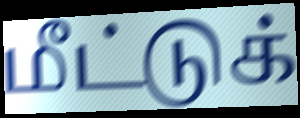
மீட்டுக்